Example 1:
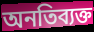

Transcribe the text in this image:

অনতিব্যক্ত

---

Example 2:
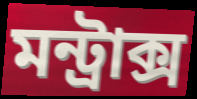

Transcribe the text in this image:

মন্ট্রাক্স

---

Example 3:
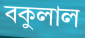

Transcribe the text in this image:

বকুলাল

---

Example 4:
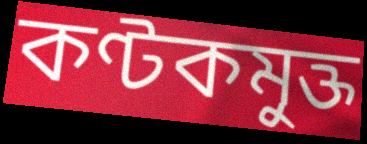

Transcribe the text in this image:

কণ্টকমুক্ত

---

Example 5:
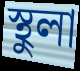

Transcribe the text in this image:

স্থুলা